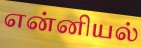
என்னியல்